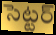
సెట్టర్